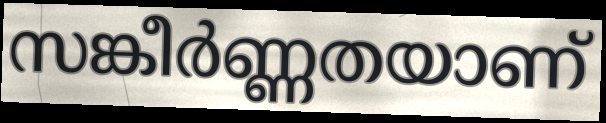
സങ്കീർണ്ണതയാണ്